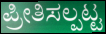
ಪ್ರೀತಿಸಲ್ಪಟ್ಟ